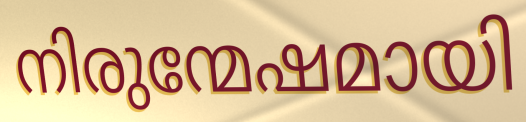
നിരുന്മേഷമായി